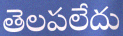
తెలపలేదు